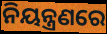
ନିୟନ୍ତ୍ରଣରେ